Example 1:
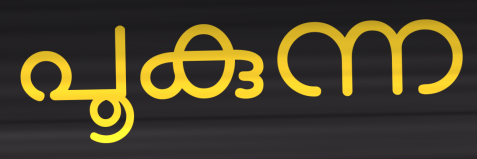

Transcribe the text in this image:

പൂകുന്ന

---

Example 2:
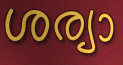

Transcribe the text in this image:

ശര്യാ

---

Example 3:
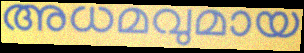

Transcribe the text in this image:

അധമവുമായ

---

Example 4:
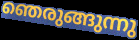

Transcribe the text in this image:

ഞെരുങ്ങുന്നു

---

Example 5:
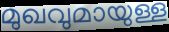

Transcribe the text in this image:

മുഖവുമായുള്ള